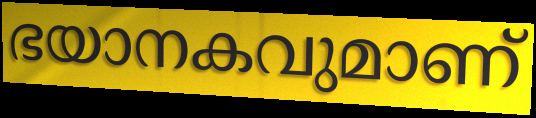
ഭയാനകവുമാണ്